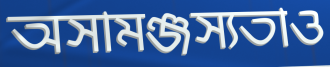
অসামঞ্জস্যতাও